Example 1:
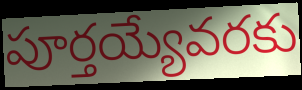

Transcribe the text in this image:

పూర్తయ్యేవరకు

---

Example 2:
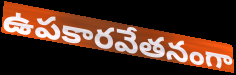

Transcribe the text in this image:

ఉపకారవేతనంగా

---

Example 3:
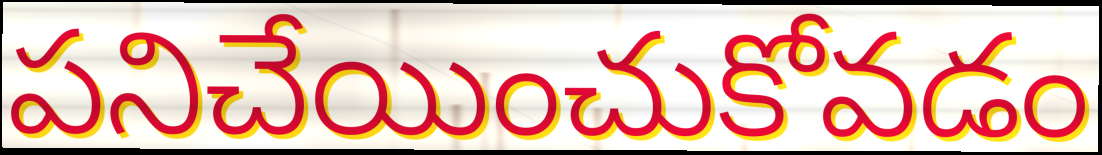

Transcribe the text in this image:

పనిచేయించుకోవడం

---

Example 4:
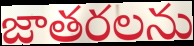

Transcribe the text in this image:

జాతరలను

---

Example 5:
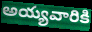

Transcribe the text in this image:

అయ్యవారికి